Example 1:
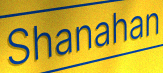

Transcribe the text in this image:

Shanahan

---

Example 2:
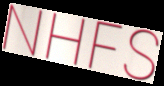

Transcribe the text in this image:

NHFS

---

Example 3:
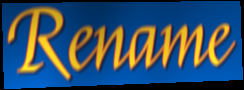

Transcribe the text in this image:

Rename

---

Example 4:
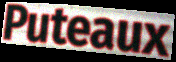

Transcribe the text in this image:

Puteaux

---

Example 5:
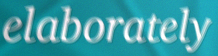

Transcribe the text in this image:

elaborately